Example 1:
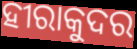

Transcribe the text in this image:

ହୀରାକୁଦର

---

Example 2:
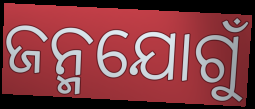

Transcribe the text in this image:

ଜନ୍ମଯୋଗୁଁ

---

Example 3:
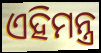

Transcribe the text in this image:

ଏହିମନ୍ତ୍ର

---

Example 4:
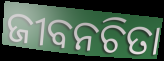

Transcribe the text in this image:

ଜୀବନଚିତା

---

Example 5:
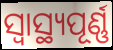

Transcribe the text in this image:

ସ୍ବାସ୍ଥ୍ୟପୂର୍ଣ୍ଣ